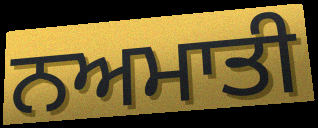
ਨਅਮਾਤੀ